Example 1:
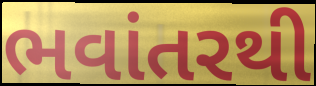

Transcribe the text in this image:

ભવાંતરથી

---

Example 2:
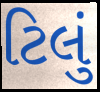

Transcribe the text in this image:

ટિલું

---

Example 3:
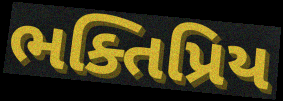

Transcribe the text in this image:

ભક્તિપ્રિય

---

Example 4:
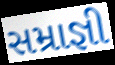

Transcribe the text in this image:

સમ્રાજ્ઞી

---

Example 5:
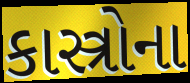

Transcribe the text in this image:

કાસ્ત્રોના